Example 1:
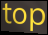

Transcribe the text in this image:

top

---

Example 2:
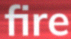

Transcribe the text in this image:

fire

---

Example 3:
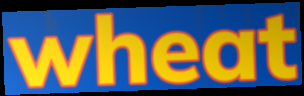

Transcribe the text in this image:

wheat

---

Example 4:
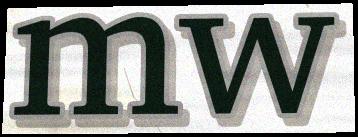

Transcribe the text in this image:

mw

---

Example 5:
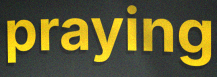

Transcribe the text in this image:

praying